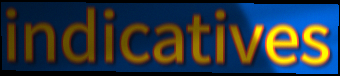
indicatives